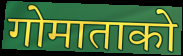
गोमाताको